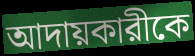
আদায়কারীকে